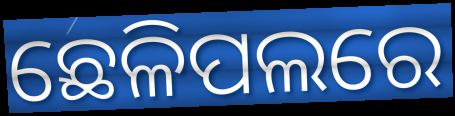
ଛେଳିପଲରେ